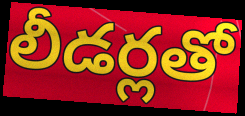
లీడర్లతో